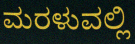
ಮರಳುವಲ್ಲಿ